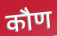
कौण